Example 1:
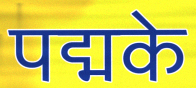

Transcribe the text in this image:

पद्मके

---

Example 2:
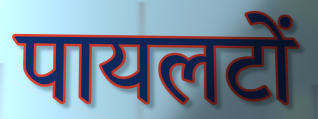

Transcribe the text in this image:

पायलटों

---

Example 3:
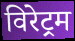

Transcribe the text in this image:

विरेट्रम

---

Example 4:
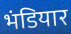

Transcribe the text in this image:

भंडियार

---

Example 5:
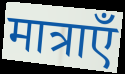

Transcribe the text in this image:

मात्राएँ